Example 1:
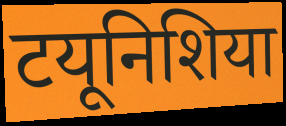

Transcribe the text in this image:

टयूनिशिया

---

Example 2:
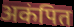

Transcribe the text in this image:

अकंपित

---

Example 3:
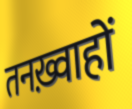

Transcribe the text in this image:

तनख़्वाहों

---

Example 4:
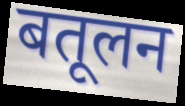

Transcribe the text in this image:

बतूलन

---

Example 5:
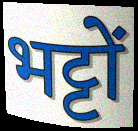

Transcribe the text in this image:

भट्टों